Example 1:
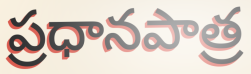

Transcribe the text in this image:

ప్రధానపాత్ర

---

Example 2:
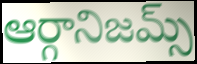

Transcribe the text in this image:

ఆర్గానిజమ్స్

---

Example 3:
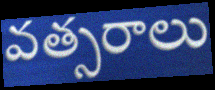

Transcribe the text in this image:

వత్సరాలు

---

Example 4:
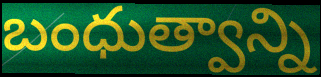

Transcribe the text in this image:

బంధుత్వాన్ని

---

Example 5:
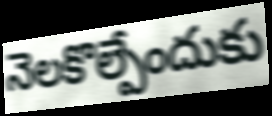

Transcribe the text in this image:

నెలకొల్పేందుకు